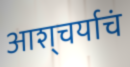
आश्चर्याचं